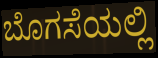
ಬೊಗಸೆಯಲ್ಲಿ